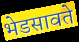
भेडसावते